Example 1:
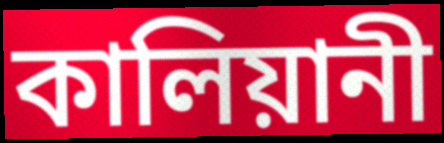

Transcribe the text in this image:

কালিয়ানী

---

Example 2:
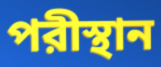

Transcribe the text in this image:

পরীস্থান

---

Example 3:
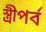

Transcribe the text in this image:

স্ত্রীপর্ব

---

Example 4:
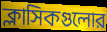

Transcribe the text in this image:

ক্লাসিকগুলোর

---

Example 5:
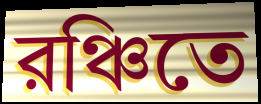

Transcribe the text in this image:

রঞ্চিতে